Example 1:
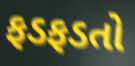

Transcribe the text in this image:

ફડફડતો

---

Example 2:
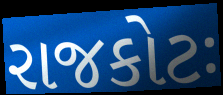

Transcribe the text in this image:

રાજકોટઃ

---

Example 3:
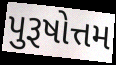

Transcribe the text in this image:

પુરૂષોત્તમ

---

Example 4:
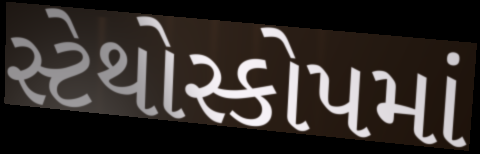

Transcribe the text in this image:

સ્ટેથોસ્કોપમાં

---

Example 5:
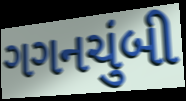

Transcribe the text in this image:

ગગનચુંબી